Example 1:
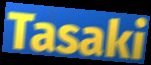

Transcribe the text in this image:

Tasaki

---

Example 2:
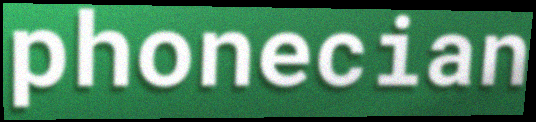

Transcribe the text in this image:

phonecian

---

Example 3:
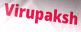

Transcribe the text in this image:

Virupaksh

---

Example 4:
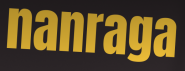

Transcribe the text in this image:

nanraga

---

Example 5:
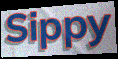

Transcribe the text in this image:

Sippy